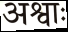
अश्वाः